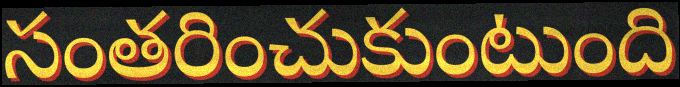
సంతరించుకుంటుంది